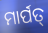
ମାର୍ପତ୍